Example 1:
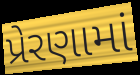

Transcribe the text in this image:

પ્રેરણામાં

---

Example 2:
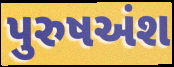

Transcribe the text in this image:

પુરુષઅંશ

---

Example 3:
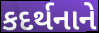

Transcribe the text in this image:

કદર્થનાને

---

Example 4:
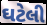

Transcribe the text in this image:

ઘટેલી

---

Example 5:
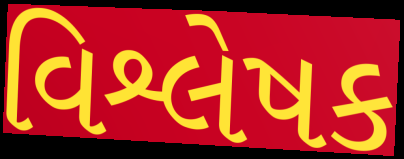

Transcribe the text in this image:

વિશ્લેષક